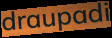
draupadi